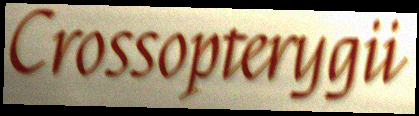
Crossopterygii